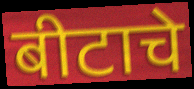
बीटाचे